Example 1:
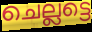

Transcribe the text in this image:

ചെല്ലട്ടെ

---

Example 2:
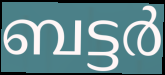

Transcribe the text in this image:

ബട്ടർ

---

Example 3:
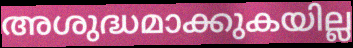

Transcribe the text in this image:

അശുദ്ധമാക്കുകയില്ല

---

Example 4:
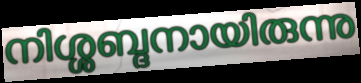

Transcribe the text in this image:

നിശ്ശബ്ദനായിരുന്നു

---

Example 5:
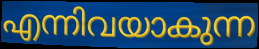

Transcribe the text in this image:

എന്നിവയാകുന്ന